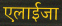
एलाईजा